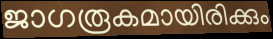
ജാഗരൂകമായിരിക്കും